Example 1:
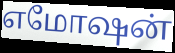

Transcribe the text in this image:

எமோஷன்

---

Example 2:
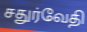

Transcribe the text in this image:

சதுர்வேதி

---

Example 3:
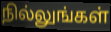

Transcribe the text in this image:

நில்லுங்கள்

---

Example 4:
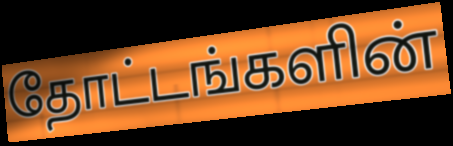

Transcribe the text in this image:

தோட்டங்களின்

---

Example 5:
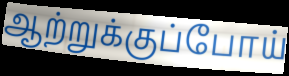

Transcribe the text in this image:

ஆற்றுக்குப்போய்